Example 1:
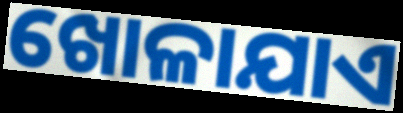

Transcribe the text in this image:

ଖୋଳାଯାଏ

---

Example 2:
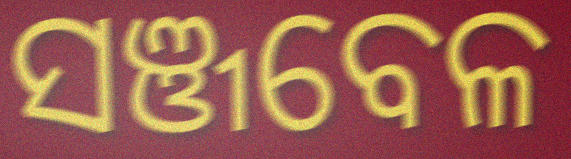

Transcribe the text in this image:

ସଞ୍ଜବେଳ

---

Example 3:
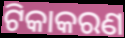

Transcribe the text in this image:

ଟିକାକରଣ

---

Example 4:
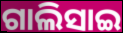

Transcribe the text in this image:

ଗାଲିସାଇ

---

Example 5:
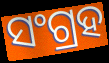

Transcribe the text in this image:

ସଂଗ୍ରହ